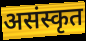
असंस्कृत